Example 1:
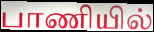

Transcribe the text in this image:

பாணியில்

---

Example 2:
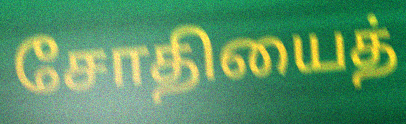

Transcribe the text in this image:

சோதியைத்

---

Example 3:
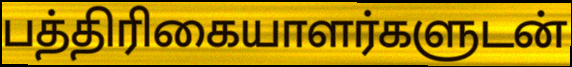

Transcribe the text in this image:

பத்திரிகையாளர்களுடன்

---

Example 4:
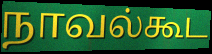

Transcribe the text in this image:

நாவல்கூட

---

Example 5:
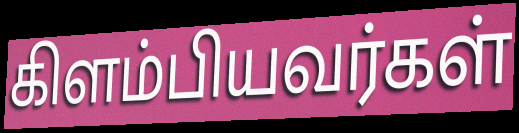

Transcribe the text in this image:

கிளம்பியவர்கள்